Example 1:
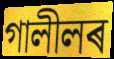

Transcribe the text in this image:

গালীলৰ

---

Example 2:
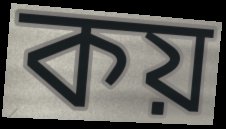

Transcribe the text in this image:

কয়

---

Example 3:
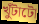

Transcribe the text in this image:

খুঁটাটো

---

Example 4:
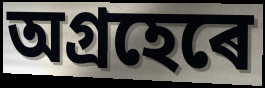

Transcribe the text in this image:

অগ্ৰহেৰে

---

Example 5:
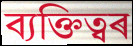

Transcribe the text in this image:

ব্যক্তিত্বৰ